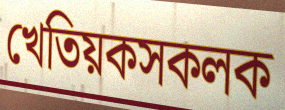
খেতিয়কসকলক